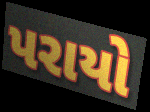
પરાયો